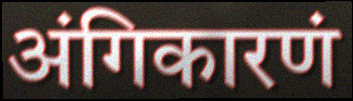
अंगिकारणं